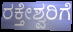
ರಕ್ತೇಶ್ವರಿಗೆ